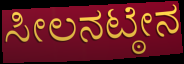
ಸೀಲನಟ್ಠೇನ